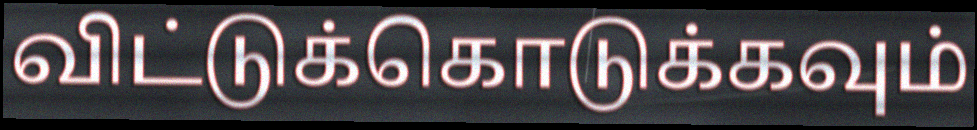
விட்டுக்கொடுக்கவும்